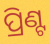
ପ୍ରିଣ୍ଟ